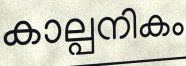
കാല്പനികം